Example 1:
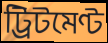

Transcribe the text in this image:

ট্ৰিটমেণ্ট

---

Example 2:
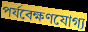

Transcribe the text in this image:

পৰ্যবেক্ষণযোগ্য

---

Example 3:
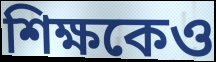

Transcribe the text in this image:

শিক্ষকেও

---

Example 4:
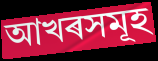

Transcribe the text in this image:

আখৰসমূহ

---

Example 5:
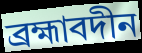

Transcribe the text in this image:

ব্ৰহ্মাবদীন